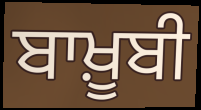
ਬਾਖ਼ੂਬੀ